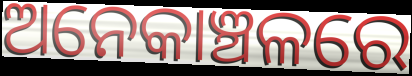
ଅନେକାଞ୍ଚଳରେ